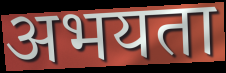
अभयता